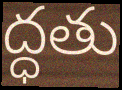
ద్ధతు